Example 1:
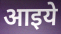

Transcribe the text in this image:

आइये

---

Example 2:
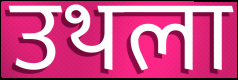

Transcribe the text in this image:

उथला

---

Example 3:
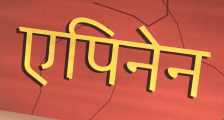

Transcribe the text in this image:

एपिनेन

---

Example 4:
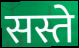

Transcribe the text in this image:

सस्ते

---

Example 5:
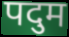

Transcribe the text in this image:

पदुम